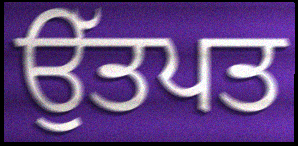
ਉੱਤਪਤ